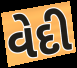
વેદી